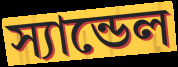
স্যান্ডেল